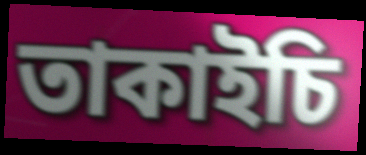
তাকাইচি